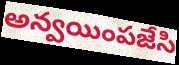
అన్వయింపజేసి